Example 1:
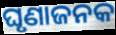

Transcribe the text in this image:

ଘୃଣାଜନକ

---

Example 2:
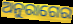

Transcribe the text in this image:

ଅନୁରାଗେର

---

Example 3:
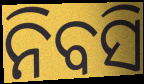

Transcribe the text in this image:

ନିବସି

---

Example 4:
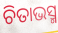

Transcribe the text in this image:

ଚିତାଭସ୍ମ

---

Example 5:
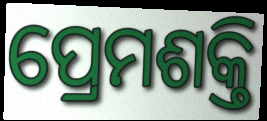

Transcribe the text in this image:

ପ୍ରେମଶକ୍ତି